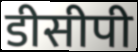
डीसीपी